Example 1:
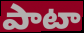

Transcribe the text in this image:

పాటా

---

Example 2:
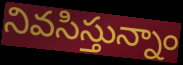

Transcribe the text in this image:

నివసిస్తున్నాం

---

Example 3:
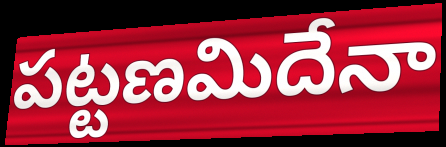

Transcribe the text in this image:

పట్టణమిదేనా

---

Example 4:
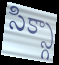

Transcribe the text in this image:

సిక్స్గా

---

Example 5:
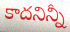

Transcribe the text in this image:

కాదనిన్నీ